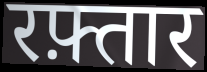
रफ़्तार